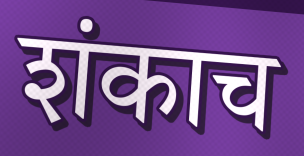
शंकाच